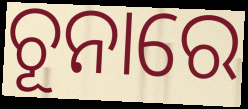
ଚୂନାରେ